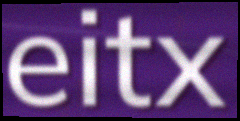
eitx